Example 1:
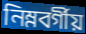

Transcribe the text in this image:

নিম্নবর্গীয়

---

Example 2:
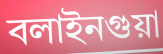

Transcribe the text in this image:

বলাইনগুয়া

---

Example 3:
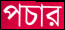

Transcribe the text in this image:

পচার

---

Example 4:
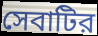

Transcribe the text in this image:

সেবাটির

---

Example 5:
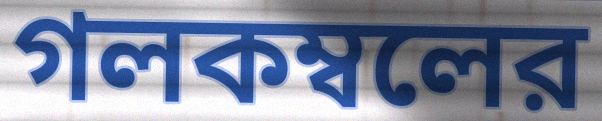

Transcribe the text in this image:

গলকম্বলের